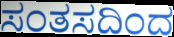
ಸಂತಸದಿಂದ